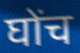
घोंच